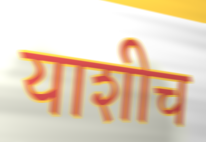
याशीच